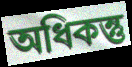
অধিকন্তু